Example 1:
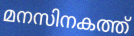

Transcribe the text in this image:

മനസിനകത്ത്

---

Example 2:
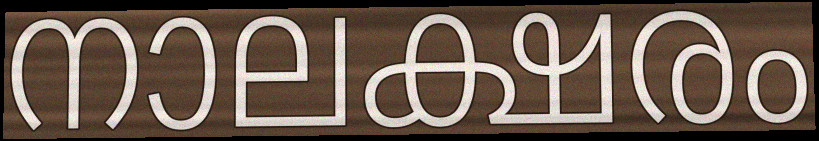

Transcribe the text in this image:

നാലക്ഷരം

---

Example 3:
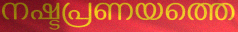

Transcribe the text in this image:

നഷ്ടപ്രണയത്തെ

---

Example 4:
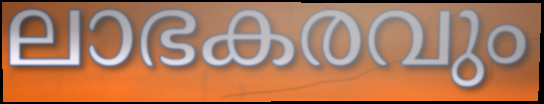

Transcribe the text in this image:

ലാഭകരവും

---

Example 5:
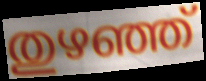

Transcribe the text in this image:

തുഴഞ്ഞ്